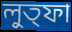
লুত্ফা